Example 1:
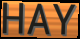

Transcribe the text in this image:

HAY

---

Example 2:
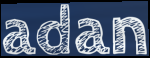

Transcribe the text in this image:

adan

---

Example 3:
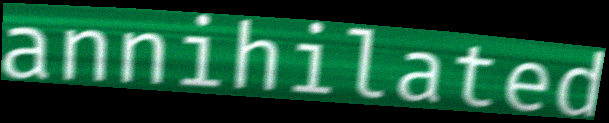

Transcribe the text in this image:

annihilated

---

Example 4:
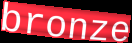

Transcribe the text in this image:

bronze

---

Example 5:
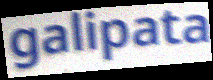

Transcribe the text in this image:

galipata